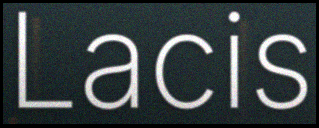
Lacis